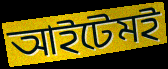
আইটেমই